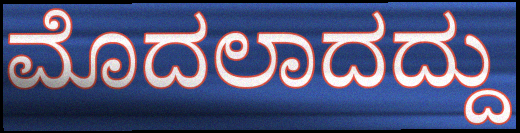
ಮೊದಲಾದದ್ದು